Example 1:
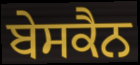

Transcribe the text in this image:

ਬੇਸਕੈਨ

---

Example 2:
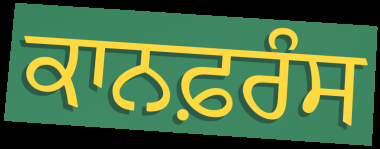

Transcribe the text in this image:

ਕਾਨਫ਼ਰੰਸ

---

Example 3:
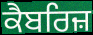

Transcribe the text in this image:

ਕੈਬਰਿਜ਼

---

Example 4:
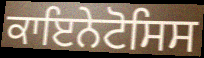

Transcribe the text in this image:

ਕਾਇਨੇਟੋਸਿਸ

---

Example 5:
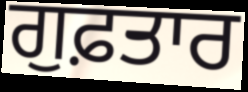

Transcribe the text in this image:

ਗੁਫ਼ਤਾਰ